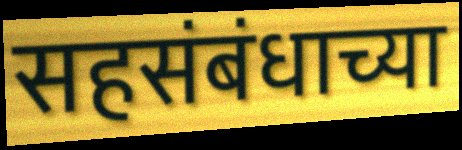
सहसंबंधाच्या